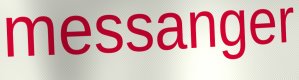
messanger